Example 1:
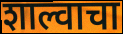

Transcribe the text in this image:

शाल्वाचा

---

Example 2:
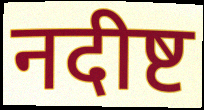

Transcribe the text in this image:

नदीष्ट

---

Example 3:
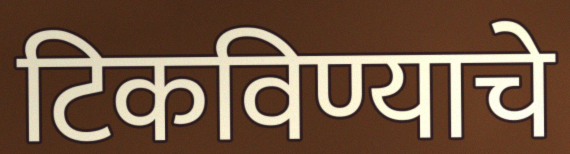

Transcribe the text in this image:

टिकविण्याचे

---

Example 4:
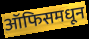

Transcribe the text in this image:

ऑफिसमधून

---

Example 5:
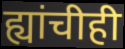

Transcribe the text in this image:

ह्यांचीही